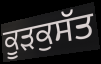
ਕੂੜਕੁਸੱਤ